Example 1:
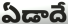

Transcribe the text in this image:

ఏడాదే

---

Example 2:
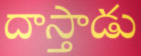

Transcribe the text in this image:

దాస్తాడు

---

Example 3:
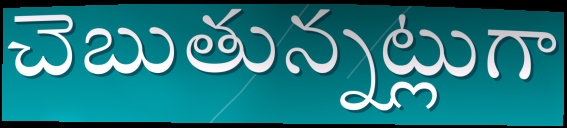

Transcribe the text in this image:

చెబుతున్నట్లుగా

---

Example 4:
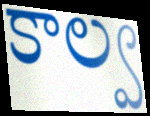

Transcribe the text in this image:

కాల్వ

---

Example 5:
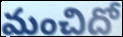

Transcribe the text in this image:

మంచిదో